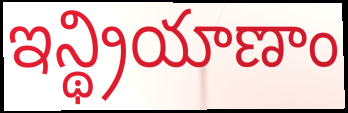
ఇన్థ్రియాణాం